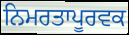
ਨਿਮਰਤਾਪੂਰਵਕ